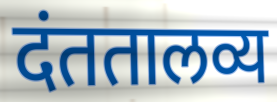
दंततालव्य